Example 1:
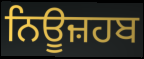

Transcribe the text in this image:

ਨਿਊਜ਼ਹਬ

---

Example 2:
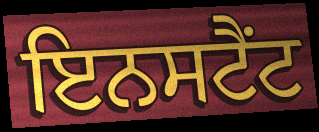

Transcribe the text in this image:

ਇਨਸਟੈਂਟ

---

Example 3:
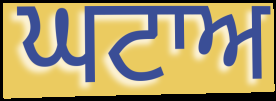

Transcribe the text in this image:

ਘਟਾਅ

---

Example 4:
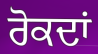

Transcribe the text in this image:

ਰੋਕਦਾਂ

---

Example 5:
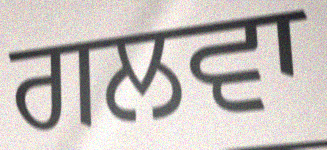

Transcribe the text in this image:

ਗਲਵਾ